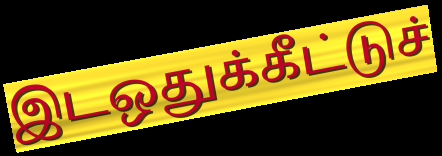
இடஒதுக்கீட்டுச்